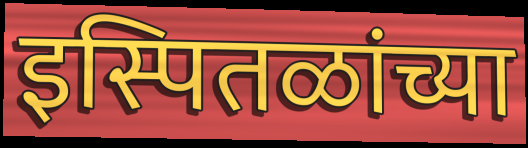
इस्पितळांच्या